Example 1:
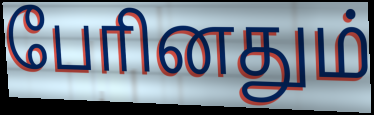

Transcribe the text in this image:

பேரினதும்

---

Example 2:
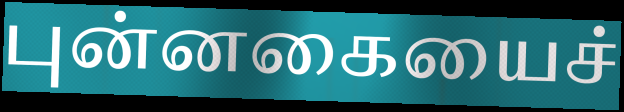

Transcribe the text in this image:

புன்னகையைச்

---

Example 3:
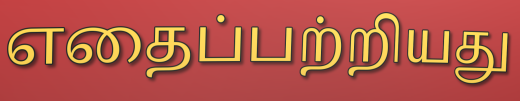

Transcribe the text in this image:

எதைப்பற்றியது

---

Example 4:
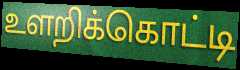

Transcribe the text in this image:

உளறிக்கொட்டி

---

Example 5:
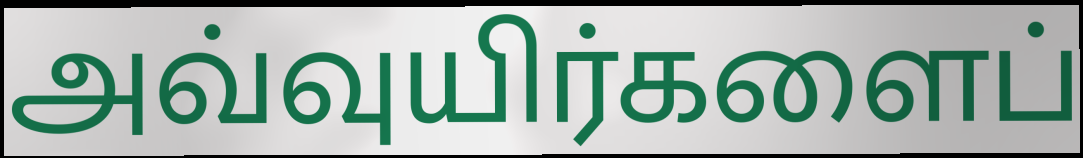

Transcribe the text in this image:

அவ்வுயிர்களைப்